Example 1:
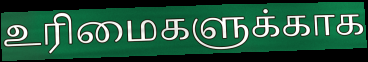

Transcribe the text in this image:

உரிமைகளுக்காக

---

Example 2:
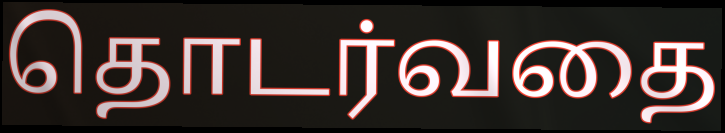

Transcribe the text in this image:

தொடர்வதை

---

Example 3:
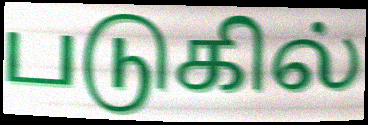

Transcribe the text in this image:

படுகில்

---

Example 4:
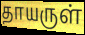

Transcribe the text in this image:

தாயருள்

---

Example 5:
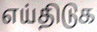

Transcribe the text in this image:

எய்திடுக